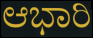
ಆಭಾರಿ